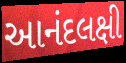
આનંદલક્ષી